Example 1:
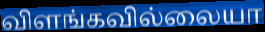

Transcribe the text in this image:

விளங்கவில்லையா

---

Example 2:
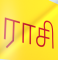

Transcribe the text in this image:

ராசி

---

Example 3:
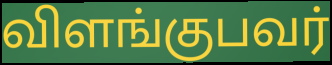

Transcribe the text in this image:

விளங்குபவர்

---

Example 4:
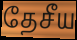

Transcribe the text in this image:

தேசீய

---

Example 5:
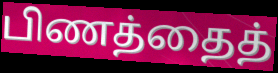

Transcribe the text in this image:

பிணத்தைத்